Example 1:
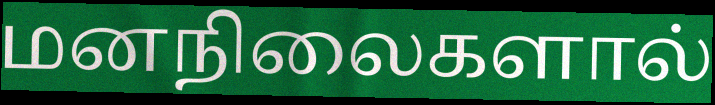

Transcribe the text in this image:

மனநிலைகளால்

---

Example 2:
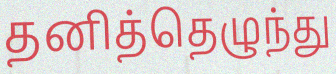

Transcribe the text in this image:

தனித்தெழுந்து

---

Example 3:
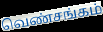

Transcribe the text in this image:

வெண்சங்கம்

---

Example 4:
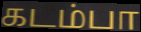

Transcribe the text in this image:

கடம்பா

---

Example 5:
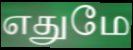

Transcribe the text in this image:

எதுமே